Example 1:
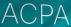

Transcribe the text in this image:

ACPA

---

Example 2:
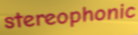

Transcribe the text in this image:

stereophonic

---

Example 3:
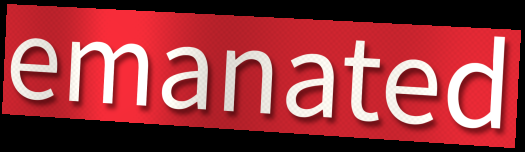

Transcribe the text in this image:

emanated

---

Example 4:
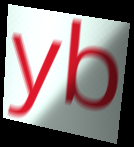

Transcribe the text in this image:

yb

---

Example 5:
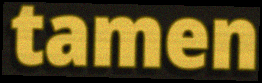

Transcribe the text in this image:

tamen